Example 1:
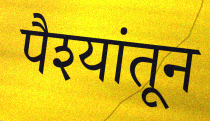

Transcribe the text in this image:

पैश्यांतून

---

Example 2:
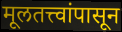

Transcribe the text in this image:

मूलतत्त्वांपासून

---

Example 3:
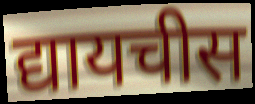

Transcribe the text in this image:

द्यायचीस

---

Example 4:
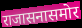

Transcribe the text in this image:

राजासनासमोर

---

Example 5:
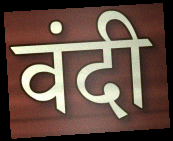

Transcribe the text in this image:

वंदी